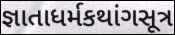
જ્ઞાતાધર્મકથાંગસૂત્ર